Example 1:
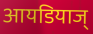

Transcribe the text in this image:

आयडियाज्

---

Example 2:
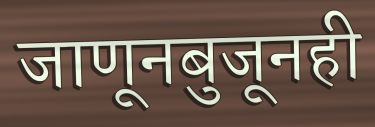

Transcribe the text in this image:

जाणूनबुजूनही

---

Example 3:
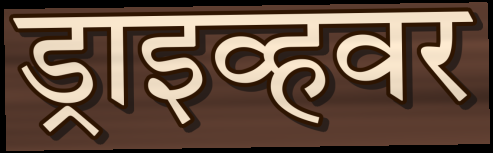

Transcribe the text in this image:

ड्राइव्हवर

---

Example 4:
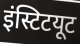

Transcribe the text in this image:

इंस्टिटयूट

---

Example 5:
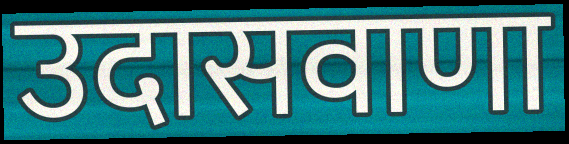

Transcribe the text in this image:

उदासवाणा